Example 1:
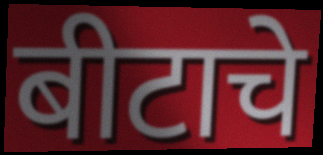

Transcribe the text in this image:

बीटाचे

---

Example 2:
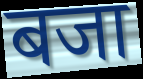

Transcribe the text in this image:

बजा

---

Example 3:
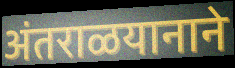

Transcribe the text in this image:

अंतराळयानाने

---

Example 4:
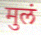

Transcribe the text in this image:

मुलं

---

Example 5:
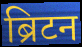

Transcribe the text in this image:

ब्रिटन